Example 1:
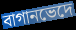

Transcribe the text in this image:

বাগানভেদে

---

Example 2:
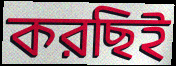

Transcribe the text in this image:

করছিই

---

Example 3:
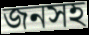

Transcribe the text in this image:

জনসহ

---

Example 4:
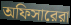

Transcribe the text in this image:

অফিসারেরা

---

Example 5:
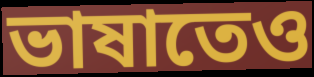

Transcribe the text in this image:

ভাষাতেও